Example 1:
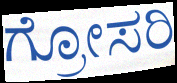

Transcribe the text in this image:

ಗ್ರೋಸರಿ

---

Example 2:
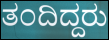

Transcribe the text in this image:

ತಂದಿದ್ದರು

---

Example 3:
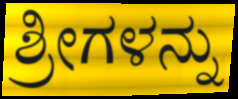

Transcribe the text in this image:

ಶ್ರೀಗಳನ್ನು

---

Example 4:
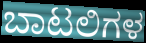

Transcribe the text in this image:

ಬಾಟಲಿಗಳ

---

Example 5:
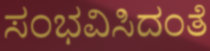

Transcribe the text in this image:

ಸಂಭವಿಸಿದಂತೆ